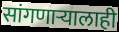
सांगणाऱ्यालाही